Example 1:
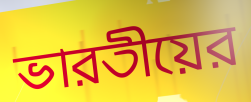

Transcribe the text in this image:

ভারতীয়ের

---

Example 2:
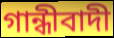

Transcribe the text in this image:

গান্ধীবাদী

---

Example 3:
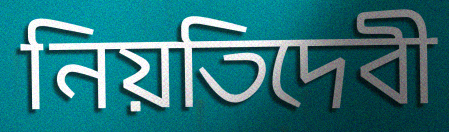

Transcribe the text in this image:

নিয়তিদেবী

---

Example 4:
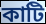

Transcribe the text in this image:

কাটি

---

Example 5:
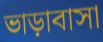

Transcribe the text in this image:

ভাড়াবাসা